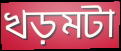
খড়মটা